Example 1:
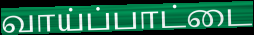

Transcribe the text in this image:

வாய்ப்பாட்டை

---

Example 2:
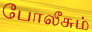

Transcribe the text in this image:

போலீசும்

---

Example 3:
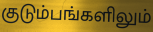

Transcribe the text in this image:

குடும்பங்களிலும்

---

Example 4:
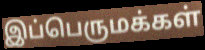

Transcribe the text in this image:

இப்பெருமக்கள்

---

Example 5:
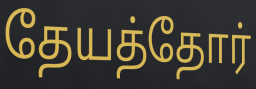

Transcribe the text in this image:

தேயத்தோர்